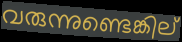
വരുന്നുണ്ടെങ്കില്